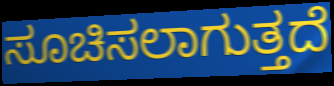
ಸೂಚಿಸಲಾಗುತ್ತದೆ